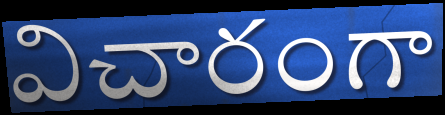
విచారంగా